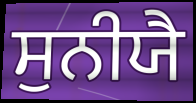
ਸੁਨੀਯੈ